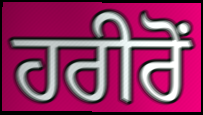
ਹਰੀਰੋਂ